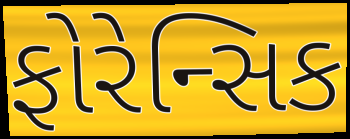
ફોરેન્સિક